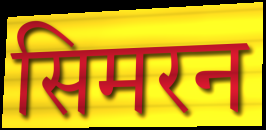
सिमरन